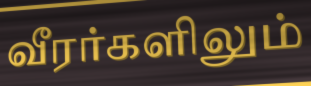
வீரர்களிலும்